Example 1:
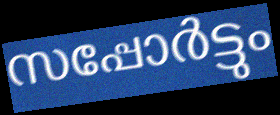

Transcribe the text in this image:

സപ്പോർട്ടും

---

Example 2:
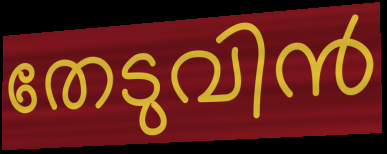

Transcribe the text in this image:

തേടുവിൻ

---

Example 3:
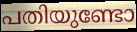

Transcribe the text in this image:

പതിയുണ്ടോ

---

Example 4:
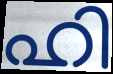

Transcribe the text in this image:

ഹി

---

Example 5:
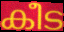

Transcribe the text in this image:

കീട